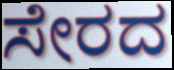
ಸೇರದ